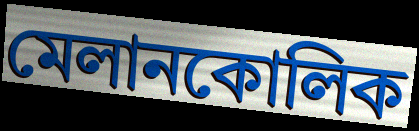
মেলানকোলিক